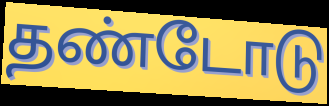
தண்டோடு